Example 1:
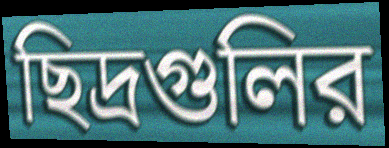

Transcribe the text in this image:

ছিদ্রগুলির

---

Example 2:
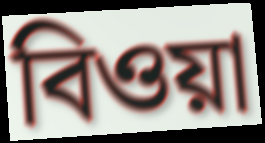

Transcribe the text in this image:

বিওয়া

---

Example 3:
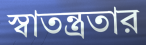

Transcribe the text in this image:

স্বাতন্ত্রতার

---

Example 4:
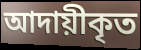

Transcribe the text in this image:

আদায়ীকৃত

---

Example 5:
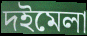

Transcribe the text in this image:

দইমেলা